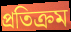
প্ৰতিক্ৰম